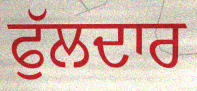
ਫੁੱਲਦਾਰ